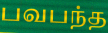
பவபந்த